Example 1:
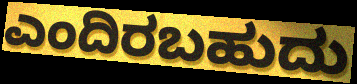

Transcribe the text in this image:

ಎಂದಿರಬಹುದು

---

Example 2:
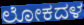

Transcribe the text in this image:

ಲೋಕದಳ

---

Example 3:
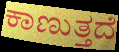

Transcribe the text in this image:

ಕಾಣುತ್ತದೆ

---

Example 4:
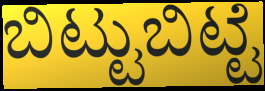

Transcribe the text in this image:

ಬಿಟ್ಟುಬಿಟ್ಟೆ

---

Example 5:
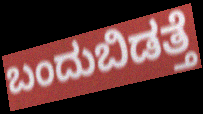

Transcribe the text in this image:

ಬಂದುಬಿಡತ್ತೆ